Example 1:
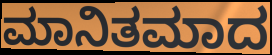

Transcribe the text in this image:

ಮಾನಿತಮಾದ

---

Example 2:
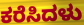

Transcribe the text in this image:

ಕರೆಸಿದಳು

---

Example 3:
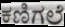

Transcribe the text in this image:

ಕಣಿಗಲೆ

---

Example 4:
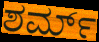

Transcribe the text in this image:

ಶರ್ಮ್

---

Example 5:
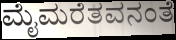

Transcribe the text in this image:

ಮೈಮರೆತವನಂತೆ